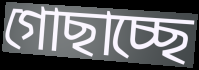
গোছাচ্ছে